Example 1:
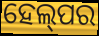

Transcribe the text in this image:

ହେଲ୍‌ପର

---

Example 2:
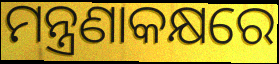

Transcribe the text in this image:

ମନ୍ତ୍ରଣାକକ୍ଷରେ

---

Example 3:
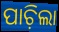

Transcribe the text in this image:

ପାଚ଼ିଲା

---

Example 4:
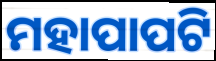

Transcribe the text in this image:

ମହାପାପଟି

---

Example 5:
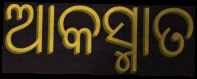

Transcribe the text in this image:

ଆକସ୍ମାତ